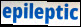
epileptic